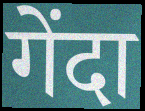
गेंदा